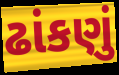
ઢાંકણું